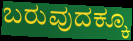
ಬರುವುದಕ್ಕೂ